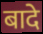
बादे